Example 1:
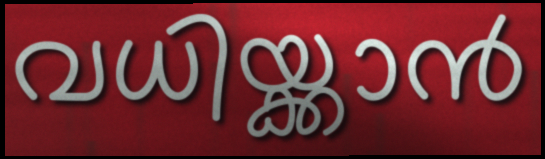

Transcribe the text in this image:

വധിയ്ക്കാൻ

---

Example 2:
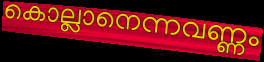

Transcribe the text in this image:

കൊല്ലാനെന്നവണ്ണം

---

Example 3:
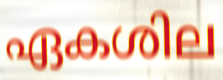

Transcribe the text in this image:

ഏകശില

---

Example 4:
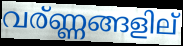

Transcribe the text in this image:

വര്ണ്ണങ്ങളില്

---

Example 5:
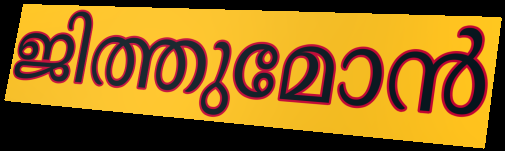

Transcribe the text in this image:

ജിത്തുമോൻ